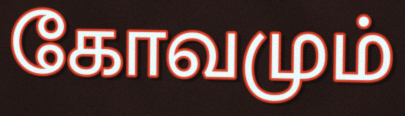
கோவமும்